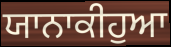
ਯਾਨਾਕੀਹੁਆ